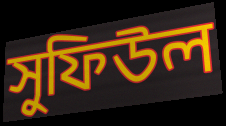
সুফিউল